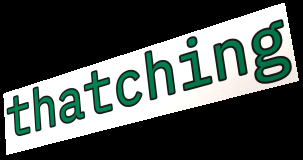
thatching